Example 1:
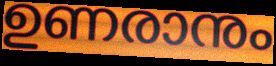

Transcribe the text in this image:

ഉണരാനും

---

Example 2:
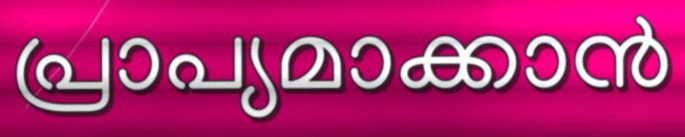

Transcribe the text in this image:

പ്രാപ്യമാക്കാൻ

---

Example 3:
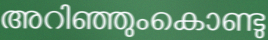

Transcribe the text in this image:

അറിഞ്ഞുംകൊണ്ടു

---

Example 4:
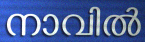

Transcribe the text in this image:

നാവിൽ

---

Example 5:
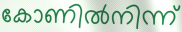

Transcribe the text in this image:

കോണിൽനിന്ന്